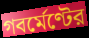
গবর্মেণ্টের